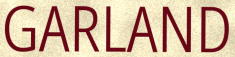
GARLAND